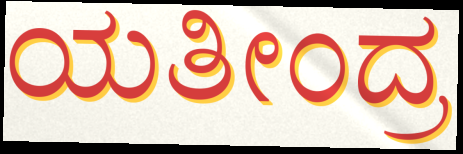
ಯತೀಂದ್ರ